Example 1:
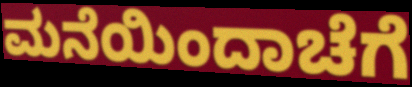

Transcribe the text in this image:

ಮನೆಯಿಂದಾಚೆಗೆ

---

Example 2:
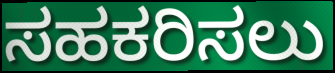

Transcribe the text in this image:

ಸಹಕರಿಸಲು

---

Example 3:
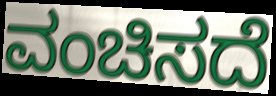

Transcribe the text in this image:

ವಂಚಿಸದೆ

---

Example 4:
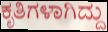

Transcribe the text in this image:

ಕೃತಿಗಳಾಗಿದ್ದು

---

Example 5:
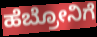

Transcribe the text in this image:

ಹೆಬ್ರೋನಿಗೆ